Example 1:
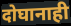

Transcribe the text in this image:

दोघानाही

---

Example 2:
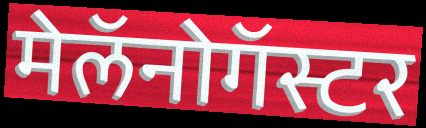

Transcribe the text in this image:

मेलॅनोगॅस्टर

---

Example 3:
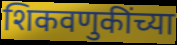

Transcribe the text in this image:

शिकवणुकींच्या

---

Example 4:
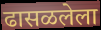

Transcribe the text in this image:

ढासळलेला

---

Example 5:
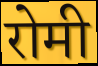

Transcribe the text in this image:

रोमी